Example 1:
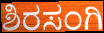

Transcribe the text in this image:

ಶಿರಸಂಗಿ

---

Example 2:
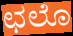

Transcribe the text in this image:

ಛಲೊ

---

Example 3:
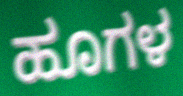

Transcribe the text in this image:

ಹೂಗಳ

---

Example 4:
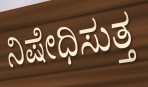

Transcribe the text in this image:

ನಿಷೇಧಿಸುತ್ತ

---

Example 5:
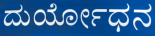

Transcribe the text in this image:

ದುರ್ಯೋಧನ